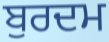
ਬੁਰਦਮ